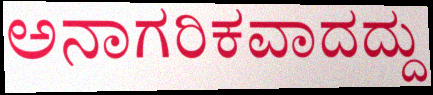
ಅನಾಗರಿಕವಾದದ್ದು